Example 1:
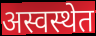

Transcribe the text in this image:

अस्वस्थेत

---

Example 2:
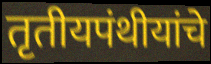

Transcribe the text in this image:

तृतीयपंथीयांचे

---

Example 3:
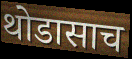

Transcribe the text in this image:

थोडासाच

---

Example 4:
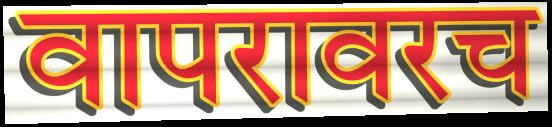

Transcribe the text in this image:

वापरावरच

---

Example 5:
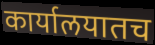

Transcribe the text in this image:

कार्यालयातच